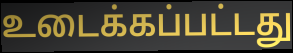
உடைக்கப்பட்டது